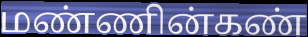
மண்ணின்கண்